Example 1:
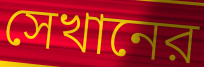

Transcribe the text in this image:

সেখানের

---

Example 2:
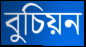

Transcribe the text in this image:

বুচিয়ন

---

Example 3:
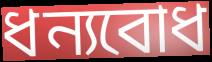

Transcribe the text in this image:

ধন্যবোধ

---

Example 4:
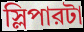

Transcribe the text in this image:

স্লিপারটা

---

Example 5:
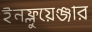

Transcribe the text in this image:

ইনফ্লুয়েঞ্জার